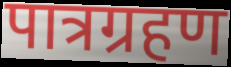
पात्रग्रहण